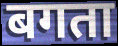
बगता